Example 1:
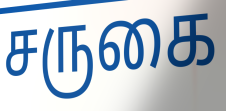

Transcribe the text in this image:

சருகை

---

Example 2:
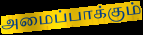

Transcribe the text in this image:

அமைப்பாக்கும்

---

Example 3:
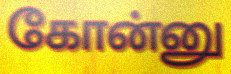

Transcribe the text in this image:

கோன்னு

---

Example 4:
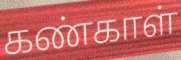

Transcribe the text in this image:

கண்காள்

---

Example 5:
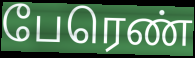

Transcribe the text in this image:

பேரெண்